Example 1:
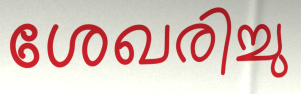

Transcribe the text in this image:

ശേഖരിച്ചു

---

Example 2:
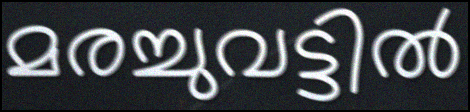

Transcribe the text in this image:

മരച്ചുവട്ടിൽ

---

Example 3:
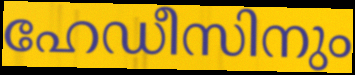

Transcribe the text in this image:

ഹേഡീസിനും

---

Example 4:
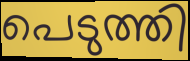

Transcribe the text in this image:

പെടുത്തി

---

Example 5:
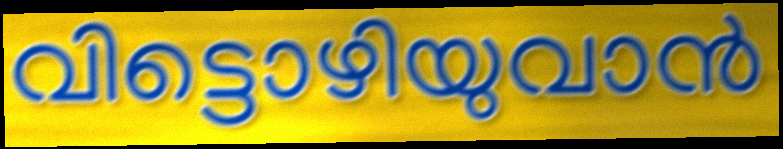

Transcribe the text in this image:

വിട്ടൊഴിയുവാൻ